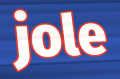
jole